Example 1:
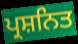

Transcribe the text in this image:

ਪ੍ਰਸ਼ਨਿਤ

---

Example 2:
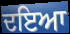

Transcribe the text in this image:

ਦਇਆ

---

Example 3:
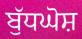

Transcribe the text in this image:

ਬੁੱਧਘੋਸ਼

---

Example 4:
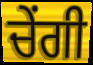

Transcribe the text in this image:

ਚੇਂਗੀ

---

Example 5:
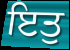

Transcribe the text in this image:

ਇਤੁ